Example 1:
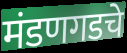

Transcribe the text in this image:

मंडणगडचे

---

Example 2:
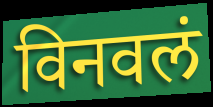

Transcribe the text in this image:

विनवलं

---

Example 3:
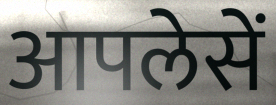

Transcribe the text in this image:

आपलेसें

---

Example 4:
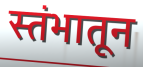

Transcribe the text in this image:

स्तंभातून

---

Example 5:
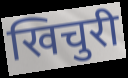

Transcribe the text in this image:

खिचुरी